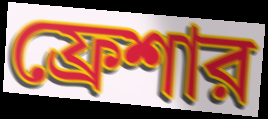
ফ্রেশার